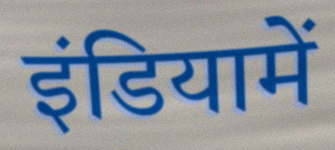
इंडियामें